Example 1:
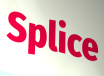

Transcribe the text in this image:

Splice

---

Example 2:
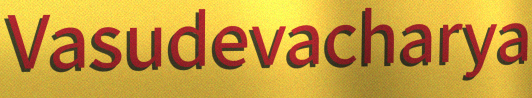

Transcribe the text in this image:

Vasudevacharya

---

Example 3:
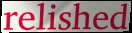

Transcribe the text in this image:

relished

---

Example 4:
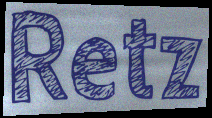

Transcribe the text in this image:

Retz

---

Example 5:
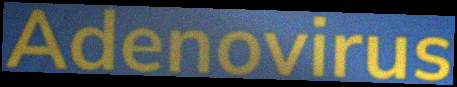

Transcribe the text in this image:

Adenovirus